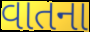
વાતના